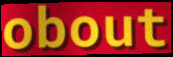
obout